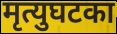
मृत्युघटका